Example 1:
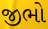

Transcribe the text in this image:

જીભો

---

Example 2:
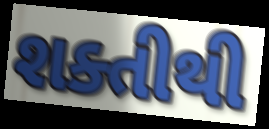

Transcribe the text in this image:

શક્તીથી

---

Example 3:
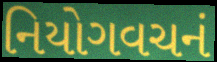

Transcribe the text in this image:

નિયોગવચનં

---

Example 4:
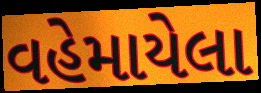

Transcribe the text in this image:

વહેમાયેલા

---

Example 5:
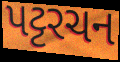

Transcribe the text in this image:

પટ્ટરચન